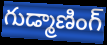
గుడ్మాణింగ్